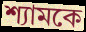
শ্যামকে